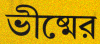
ভীষ্মের